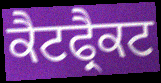
ਕੈਟਫ੍ਰੈਕਟ